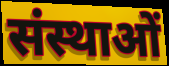
संस्थाओं